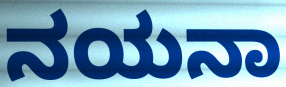
ನಯನಾ